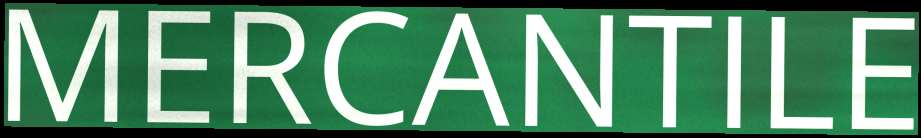
MERCANTILE